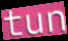
tun